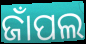
ଜାଁପଲ